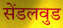
सेंडलवुड